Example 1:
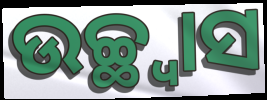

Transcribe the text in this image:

ଉଚ୍ଛ୍ୱାସ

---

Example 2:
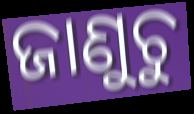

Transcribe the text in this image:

ଜାଣୁଚୁ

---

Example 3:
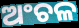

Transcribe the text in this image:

ଅଂଚଳ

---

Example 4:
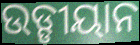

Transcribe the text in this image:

ଉଡ୍ଡୀୟାନ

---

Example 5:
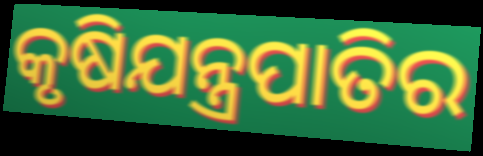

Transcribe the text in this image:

କୃଷିଯନ୍ତ୍ରପାତିର